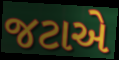
જટાએ